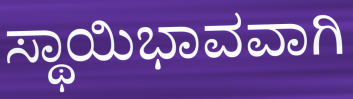
ಸ್ಥಾಯಿಭಾವವಾಗಿ